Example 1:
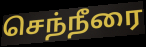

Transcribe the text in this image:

செந்நீரை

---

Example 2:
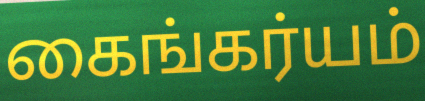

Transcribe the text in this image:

கைங்கர்யம்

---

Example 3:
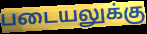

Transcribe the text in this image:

படையலுக்கு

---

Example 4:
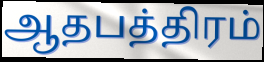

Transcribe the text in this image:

ஆதபத்திரம்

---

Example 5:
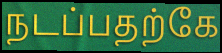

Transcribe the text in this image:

நடப்பதற்கே